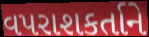
વપરાશકર્તાને